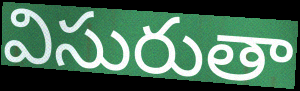
విసురుతా